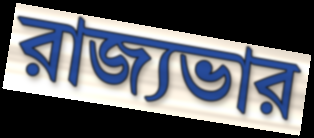
রাজ্যভার